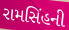
રામસિંહની